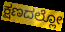
ಕ್ಷಣದಲ್ಲೋ